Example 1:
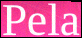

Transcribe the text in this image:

Pela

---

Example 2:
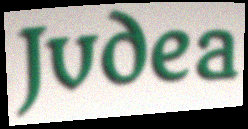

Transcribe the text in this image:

Judea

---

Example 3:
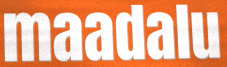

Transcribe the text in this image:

maadalu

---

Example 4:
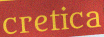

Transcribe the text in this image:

cretica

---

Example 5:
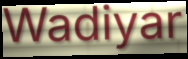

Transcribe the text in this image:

Wadiyar